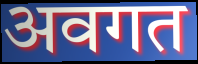
अवगत